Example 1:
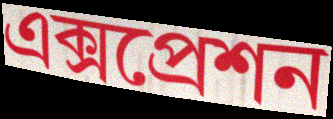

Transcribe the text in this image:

এক্সপ্রেশন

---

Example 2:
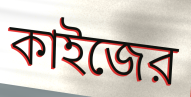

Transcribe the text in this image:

কাইজের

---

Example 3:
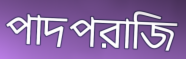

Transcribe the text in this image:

পাদপরাজি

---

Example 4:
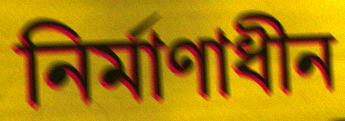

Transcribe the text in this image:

নির্মাণাধীন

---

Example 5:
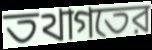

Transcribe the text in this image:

তথাগতের